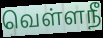
வெள்ளநீ